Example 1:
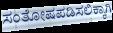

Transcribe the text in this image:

ಸಂತೋಷಪಡಿಸಲಿಕ್ಕಾಗಿ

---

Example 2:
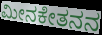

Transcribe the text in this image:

ಮೀನಕೇತನನ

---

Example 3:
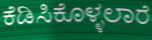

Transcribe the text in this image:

ಕೆಡಿಸಿಕೊಳ್ಳಲಾರೆ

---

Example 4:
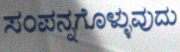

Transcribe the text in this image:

ಸಂಪನ್ನಗೊಳ್ಳುವುದು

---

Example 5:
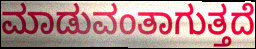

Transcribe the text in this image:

ಮಾಡುವಂತಾಗುತ್ತದೆ